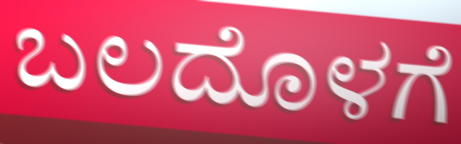
ಬಲದೊಳಗೆ